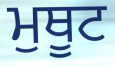
ਮੁਥੂਟ